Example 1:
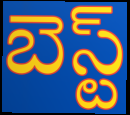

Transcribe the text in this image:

బెస్ట్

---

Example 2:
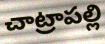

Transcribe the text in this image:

చాట్రాపల్లి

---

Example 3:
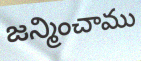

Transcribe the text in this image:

జన్మించాము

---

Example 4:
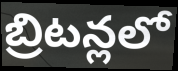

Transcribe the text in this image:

బ్రిటన్లలో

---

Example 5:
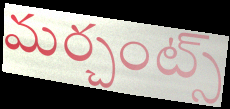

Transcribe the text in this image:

మర్చంట్స్